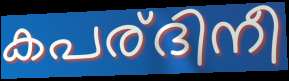
കപര്ദിനീ